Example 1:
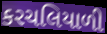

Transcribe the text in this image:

કરચલિયાળી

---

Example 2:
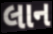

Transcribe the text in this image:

લાન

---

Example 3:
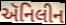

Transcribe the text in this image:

ઍનિલીન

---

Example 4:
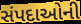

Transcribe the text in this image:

સંપદાઓની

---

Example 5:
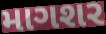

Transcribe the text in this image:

માગશર